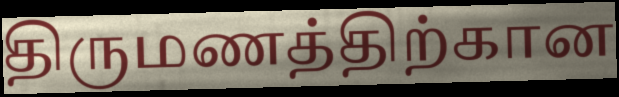
திருமணத்திற்கான